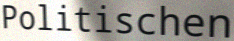
Politischen